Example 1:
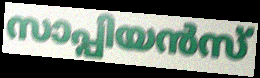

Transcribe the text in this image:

സാപ്പിയൻസ്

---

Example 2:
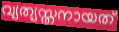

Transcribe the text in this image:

വ്യത്യസ്തനായത്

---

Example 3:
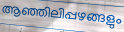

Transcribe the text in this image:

ആഞ്ഞിലിപ്പഴങ്ങളും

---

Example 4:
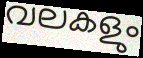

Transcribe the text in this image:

വലകളും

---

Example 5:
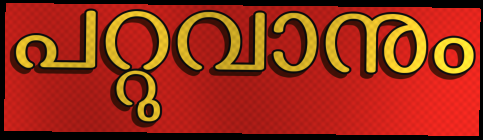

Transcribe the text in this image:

പറ്റുവാനും